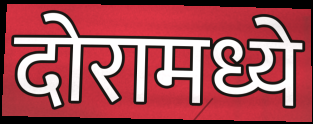
दोरामध्ये